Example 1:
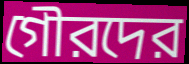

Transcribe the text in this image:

গৌরদের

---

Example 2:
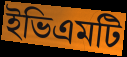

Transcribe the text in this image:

ইভিএমটি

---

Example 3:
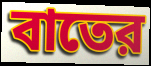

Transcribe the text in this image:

বাতের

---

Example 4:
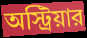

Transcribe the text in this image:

অস্ট্রিয়ার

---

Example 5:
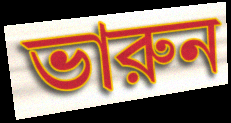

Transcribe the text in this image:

ভারুন